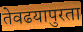
तेवढयापुरता